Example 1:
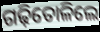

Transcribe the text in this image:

ଗଢ଼ିତୋଳିଲେ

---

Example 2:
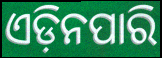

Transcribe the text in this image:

ଏଡ଼ିନପାରି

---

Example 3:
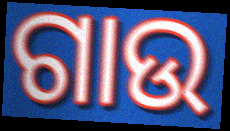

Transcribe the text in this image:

ଗାଉ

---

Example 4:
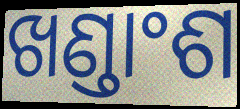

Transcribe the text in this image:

ଖଣ୍ଡାଂଶ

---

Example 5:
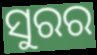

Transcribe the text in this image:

ସୁରର